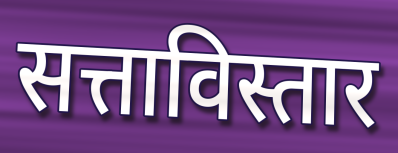
सत्ताविस्तार